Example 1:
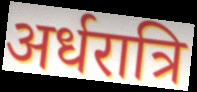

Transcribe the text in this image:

अर्धरात्रि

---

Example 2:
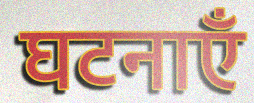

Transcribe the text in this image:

घटनाएँ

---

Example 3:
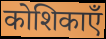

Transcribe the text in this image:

कोशिकाएँ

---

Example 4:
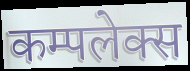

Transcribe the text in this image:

कम्पलेक्स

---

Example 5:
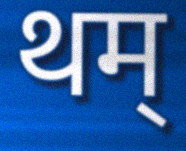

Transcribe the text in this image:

थम्